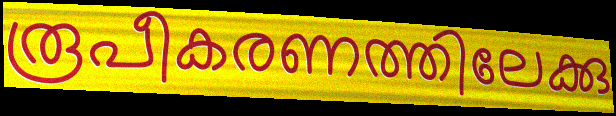
രൂപീകരണത്തിലേക്കു